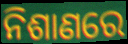
ନିଶାଣରେ